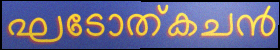
ഘടോത്കചൻ